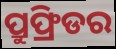
ପ୍ରୁଫ୍ରିଡର